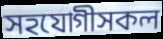
সহযোগীসকল